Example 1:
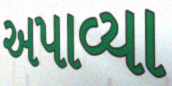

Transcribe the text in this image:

અપાવ્યા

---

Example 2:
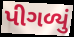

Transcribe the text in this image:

પીગળ્યું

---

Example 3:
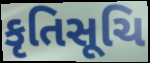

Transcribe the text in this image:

કૃતિસૂચિ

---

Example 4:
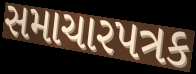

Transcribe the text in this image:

સમાચારપત્રક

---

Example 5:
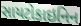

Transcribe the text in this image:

સાયટોકાઇનિન